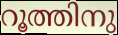
റൂത്തിനു